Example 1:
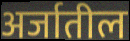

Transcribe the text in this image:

अर्जातील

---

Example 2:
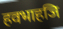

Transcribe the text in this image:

हवभाहजि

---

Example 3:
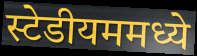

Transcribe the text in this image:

स्टेडीयममध्ये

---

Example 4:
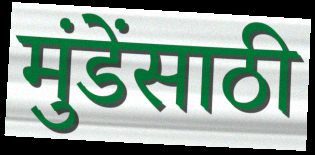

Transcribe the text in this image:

मुंडेंसाठी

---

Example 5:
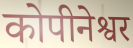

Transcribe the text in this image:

कोपीनेश्वर